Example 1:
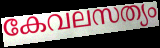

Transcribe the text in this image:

കേവലസത്യം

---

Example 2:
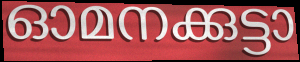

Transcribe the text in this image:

ഓമനക്കുട്ടാ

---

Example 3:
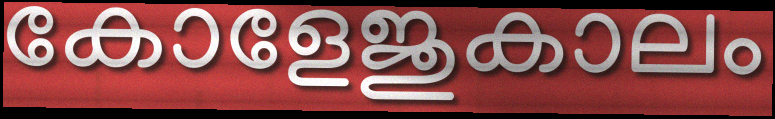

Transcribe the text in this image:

കോളേജുകാലം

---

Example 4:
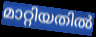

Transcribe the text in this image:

മാറ്റിയതിൽ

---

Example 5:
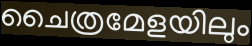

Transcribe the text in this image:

ചൈത്രമേളയിലും